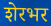
शेरभर